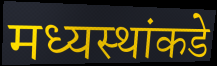
मध्यस्थांकडे